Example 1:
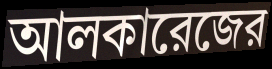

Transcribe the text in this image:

আলকারেজের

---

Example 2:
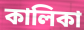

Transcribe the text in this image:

কালিকা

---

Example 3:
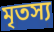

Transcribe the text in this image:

মৃতস্য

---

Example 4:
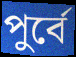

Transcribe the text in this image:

পুর্বে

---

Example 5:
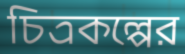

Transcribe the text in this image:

চিত্রকল্পের